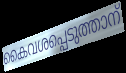
കൈവശപ്പെടുത്താന്